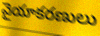
వైయాకరణులు